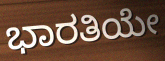
ಭಾರತಿಯೇ